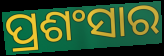
ପ୍ରଶଂସାର